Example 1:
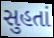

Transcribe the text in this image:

સુહતાં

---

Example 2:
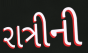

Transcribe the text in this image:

રાત્રીની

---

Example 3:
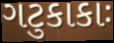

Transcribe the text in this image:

ગટુકાકાઃ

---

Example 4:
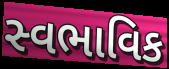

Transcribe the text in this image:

સ્વભાવિક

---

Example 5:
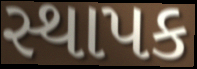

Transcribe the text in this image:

સ્થાપક